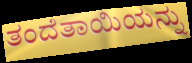
ತಂದೆತಾಯಿಯನ್ನು